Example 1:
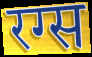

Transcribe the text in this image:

रग्स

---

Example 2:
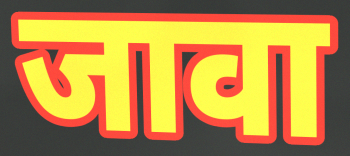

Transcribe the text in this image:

जावा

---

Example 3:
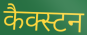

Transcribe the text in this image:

कैक्स्टन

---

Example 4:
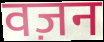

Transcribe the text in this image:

वज़न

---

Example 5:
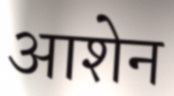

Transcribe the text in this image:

आशेन